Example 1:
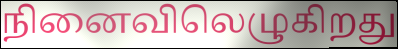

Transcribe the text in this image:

நினைவிலெழுகிறது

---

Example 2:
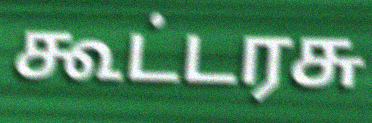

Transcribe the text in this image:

கூட்டரசு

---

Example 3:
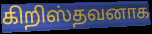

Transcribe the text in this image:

கிறிஸ்தவனாக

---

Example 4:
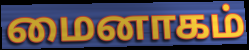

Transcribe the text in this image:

மைனாகம்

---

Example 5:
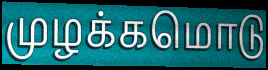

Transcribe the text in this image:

முழக்கமொடு